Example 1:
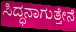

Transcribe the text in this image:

ಸಿದ್ಧನಾಗುತ್ತೇನೆ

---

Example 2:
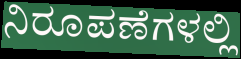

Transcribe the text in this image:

ನಿರೂಪಣೆಗಳಲ್ಲಿ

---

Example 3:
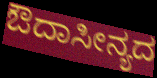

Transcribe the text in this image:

ಔದಾಸೀನ್ಯದ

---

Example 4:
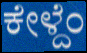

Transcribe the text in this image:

ಕೇಳ್ದೆಂ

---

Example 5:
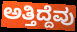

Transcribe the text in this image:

ಅತ್ತಿದ್ದೆವು